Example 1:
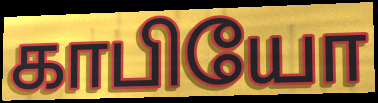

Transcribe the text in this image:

காபியோ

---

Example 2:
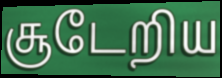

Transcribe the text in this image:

சூடேறிய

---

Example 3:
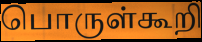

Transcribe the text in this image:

பொருள்கூறி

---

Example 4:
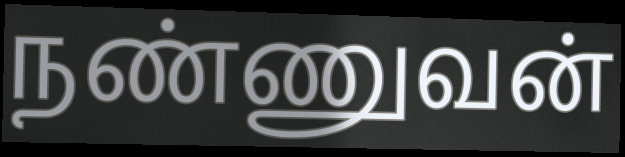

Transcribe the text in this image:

நண்ணுவன்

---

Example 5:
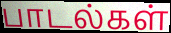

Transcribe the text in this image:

பாடல்கள்